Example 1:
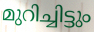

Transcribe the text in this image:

മുറിച്ചിട്ടും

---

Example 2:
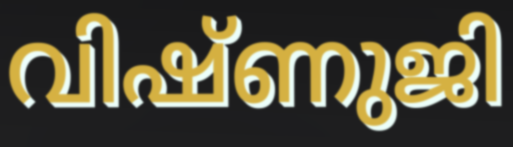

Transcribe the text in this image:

വിഷ്ണുജി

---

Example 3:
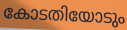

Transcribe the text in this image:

കോടതിയോടും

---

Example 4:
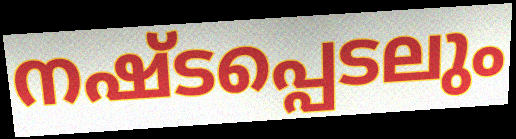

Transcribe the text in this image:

നഷ്ടപ്പെടലും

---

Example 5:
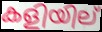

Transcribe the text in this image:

കളിയില്